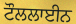
ਟੌਲਲਾਈਨ